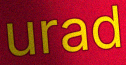
urad